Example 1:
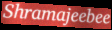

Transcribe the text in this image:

Shramajeebee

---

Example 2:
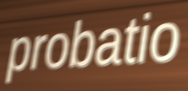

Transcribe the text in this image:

probatio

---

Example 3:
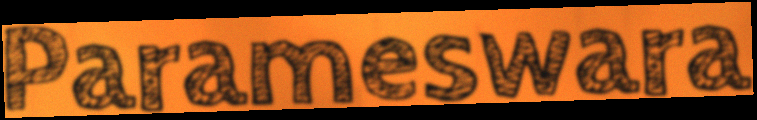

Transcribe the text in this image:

Parameswara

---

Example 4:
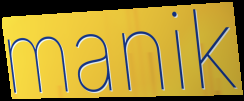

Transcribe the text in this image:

manik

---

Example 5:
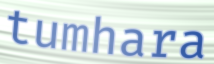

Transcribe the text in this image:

tumhara